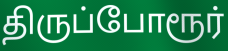
திருப்போரூர்